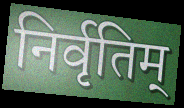
निर्वृतिम्